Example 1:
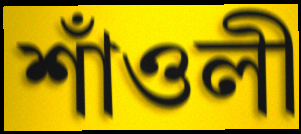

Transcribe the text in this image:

শাঁওলী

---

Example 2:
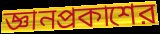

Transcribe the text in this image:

জ্ঞানপ্রকাশের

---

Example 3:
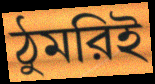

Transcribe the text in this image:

ঠুমরিই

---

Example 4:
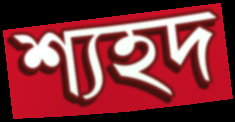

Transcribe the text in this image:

শ্যহদ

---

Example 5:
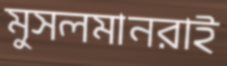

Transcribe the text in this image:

মুসলমানরাই